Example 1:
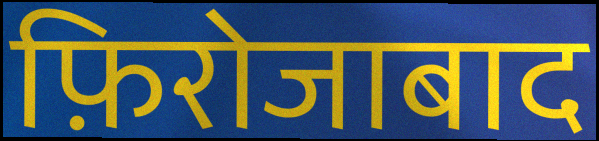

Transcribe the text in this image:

फ़िरोजाबाद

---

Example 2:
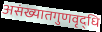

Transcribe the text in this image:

असंख्यातगुणवृद्धि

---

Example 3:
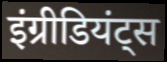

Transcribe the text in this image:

इंग्रीडियंट्स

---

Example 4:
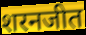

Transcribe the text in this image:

शरनजीत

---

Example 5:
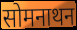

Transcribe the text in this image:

सोमनाथन